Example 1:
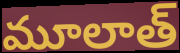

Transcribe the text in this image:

మూలాత్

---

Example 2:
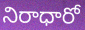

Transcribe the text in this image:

నిరాధారో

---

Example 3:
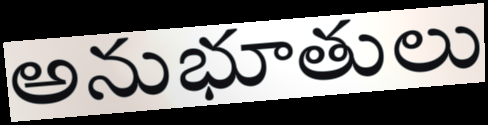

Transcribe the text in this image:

అనుభూతులు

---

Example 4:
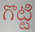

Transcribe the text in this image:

గొట్టి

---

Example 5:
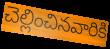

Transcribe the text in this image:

చెల్లించినవారికి